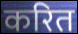
करित